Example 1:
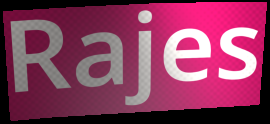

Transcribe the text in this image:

Rajes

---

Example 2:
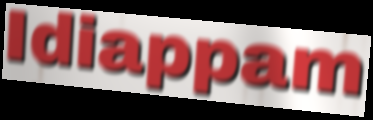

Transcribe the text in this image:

Idiappam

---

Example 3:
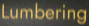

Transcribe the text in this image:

Lumbering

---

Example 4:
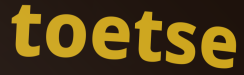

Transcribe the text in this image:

toetse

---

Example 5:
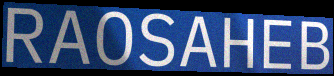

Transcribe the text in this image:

RAOSAHEB